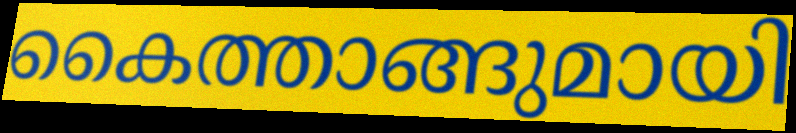
കൈത്താങ്ങുമായി